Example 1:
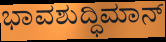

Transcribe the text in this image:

ಭಾವಶುದ್ಧಿಮಾನ್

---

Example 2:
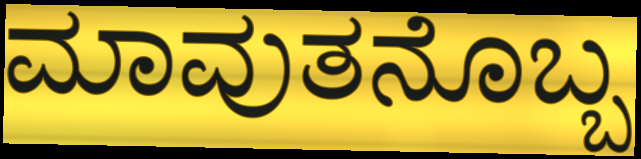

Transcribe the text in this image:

ಮಾವುತನೊಬ್ಬ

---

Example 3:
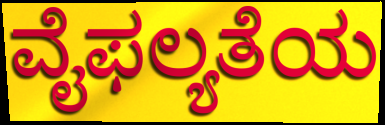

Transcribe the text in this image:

ವೈಫಲ್ಯತೆಯ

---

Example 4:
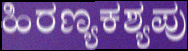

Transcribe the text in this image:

ಹಿರಣ್ಯಕಶ್ಯಪು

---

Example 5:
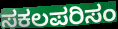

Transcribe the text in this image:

ಸಕಲಪರಿಸಂ